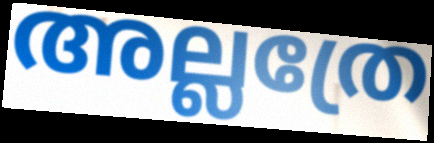
അല്ലത്രേ